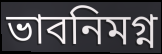
ভাবনিমগ্ন